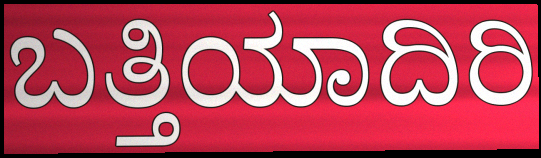
ಬತ್ತಿಯಾದಿರಿ